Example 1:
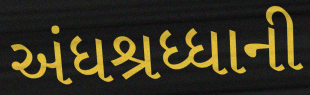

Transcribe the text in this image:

અંધશ્રધ્ધાની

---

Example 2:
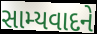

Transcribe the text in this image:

સામ્યવાદને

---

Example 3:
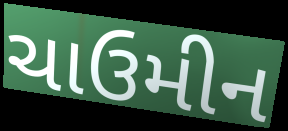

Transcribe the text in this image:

ચાઉમીન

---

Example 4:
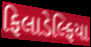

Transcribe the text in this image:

ફિલાડેલ્ફિયા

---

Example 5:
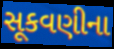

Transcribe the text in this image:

સૂકવણીના